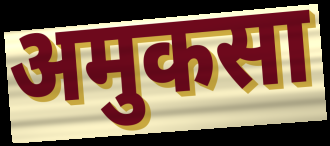
अमुकसा